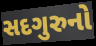
સદગુરુનો